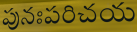
పునఃపరిచయ